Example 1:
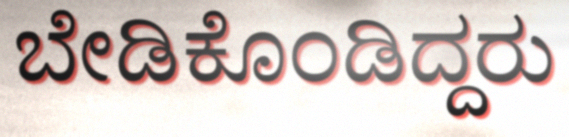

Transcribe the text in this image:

ಬೇಡಿಕೊಂಡಿದ್ದರು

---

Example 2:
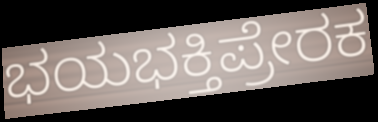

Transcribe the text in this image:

ಭಯಭಕ್ತಿಪ್ರೇರಕ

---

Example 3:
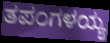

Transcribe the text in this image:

ತಪಂಗಳಯ್ಯ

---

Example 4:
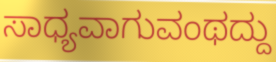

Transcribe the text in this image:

ಸಾಧ್ಯವಾಗುವಂಥದ್ದು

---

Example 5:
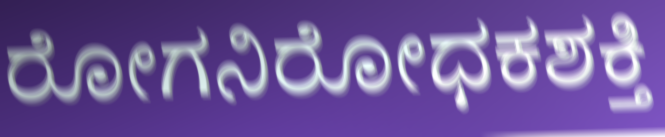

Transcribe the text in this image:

ರೋಗನಿರೋಧಕಶಕ್ತಿ